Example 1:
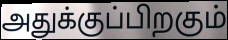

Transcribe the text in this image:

அதுக்குப்பிறகும்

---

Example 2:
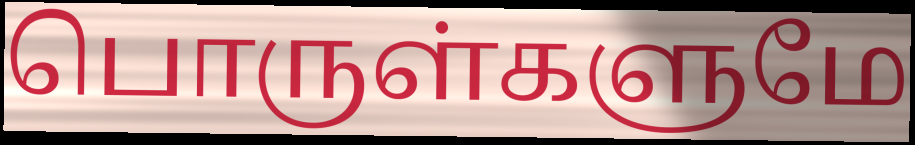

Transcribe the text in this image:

பொருள்களுமே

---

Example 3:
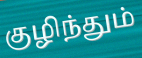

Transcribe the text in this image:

குழிந்தும்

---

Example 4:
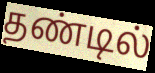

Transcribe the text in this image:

தண்டில்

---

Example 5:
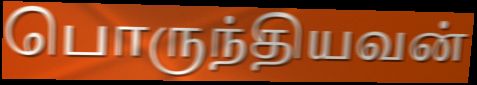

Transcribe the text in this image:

பொருந்தியவன்